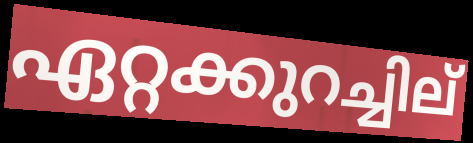
ഏറ്റക്കുറച്ചില്